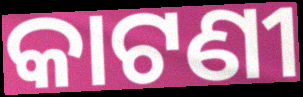
କାଟଣୀ